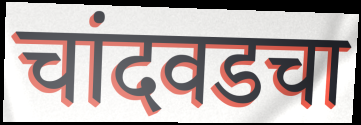
चांदवडचा